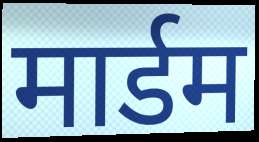
मार्डम